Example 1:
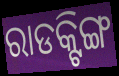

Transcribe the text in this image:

ରାଡକ୍ଟିଙ୍ଗ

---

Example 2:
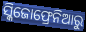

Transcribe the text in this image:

ସ୍କିଜୋଫ୍ରେନିଆରୁ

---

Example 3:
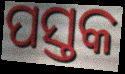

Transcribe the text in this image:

ପସ୍ତକ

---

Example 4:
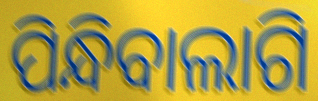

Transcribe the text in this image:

ପିନ୍ଧିବାଲାଗି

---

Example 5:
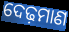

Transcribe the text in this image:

ଦେଢ଼ମାଣ